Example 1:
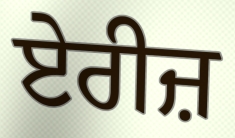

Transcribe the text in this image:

ਏਰੀਜ਼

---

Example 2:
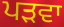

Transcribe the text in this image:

ਪੜਵਾ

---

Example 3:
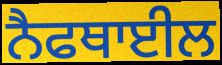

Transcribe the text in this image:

ਨੈਫਥਾਈਲ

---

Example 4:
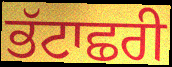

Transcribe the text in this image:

ਭੱਟਾਛਰੀ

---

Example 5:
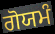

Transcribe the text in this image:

ਗੋਯਮੰ